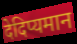
देदिप्यमान